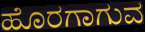
ಹೊರಗಾಗುವ